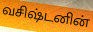
வசிஷ்டனின்